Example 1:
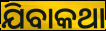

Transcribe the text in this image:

ଯିବାକଥା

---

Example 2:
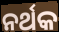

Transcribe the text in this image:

ନର୍ଥକ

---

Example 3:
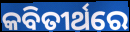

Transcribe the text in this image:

କବିତୀର୍ଥରେ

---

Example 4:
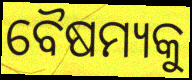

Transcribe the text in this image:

ବୈଷମ୍ୟକୁ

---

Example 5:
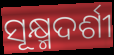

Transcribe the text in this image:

ସୂକ୍ଷ୍ମଦର୍ଶୀ